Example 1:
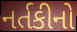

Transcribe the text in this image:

નર્તકીનો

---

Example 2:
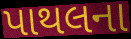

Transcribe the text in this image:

પાથલના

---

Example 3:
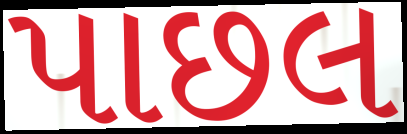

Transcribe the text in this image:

પાછલ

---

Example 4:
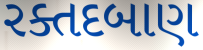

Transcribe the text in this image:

રક્તદબાણ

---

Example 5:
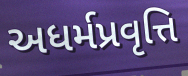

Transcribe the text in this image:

અધર્મપ્રવૃત્તિ